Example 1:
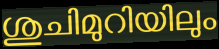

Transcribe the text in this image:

ശുചിമുറിയിലും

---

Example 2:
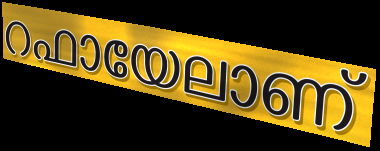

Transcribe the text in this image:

റഫായേലാണ്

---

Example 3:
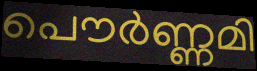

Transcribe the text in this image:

പൌർണ്ണമി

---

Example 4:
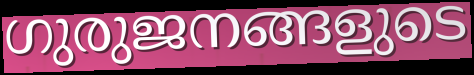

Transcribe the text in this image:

ഗുരുജനങ്ങളുടെ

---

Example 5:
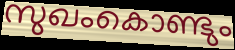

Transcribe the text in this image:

സുഖംകൊണ്ടും